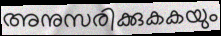
അനുസരിക്കുകകയും